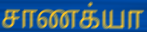
சாணக்யா